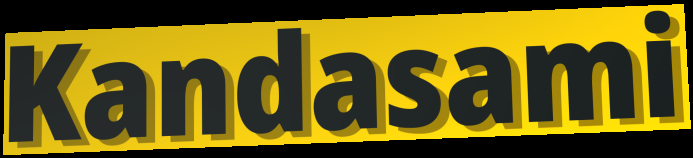
Kandasami